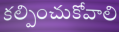
కల్పించుకోవాలి